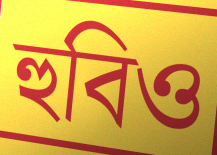
হুবিও